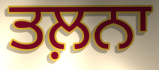
ਤਲ਼ਨਾ